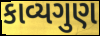
કાવ્યગુણ